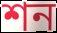
শন